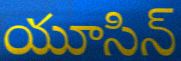
యూసిన్